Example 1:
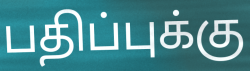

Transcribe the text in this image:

பதிப்புக்கு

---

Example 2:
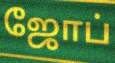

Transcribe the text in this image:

ஜோப்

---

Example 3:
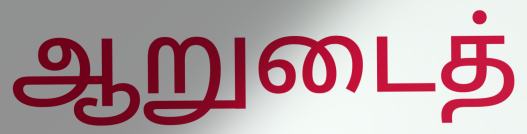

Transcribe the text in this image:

ஆறுடைத்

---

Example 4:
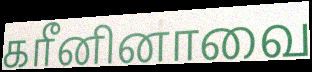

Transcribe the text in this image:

கரீனினாவை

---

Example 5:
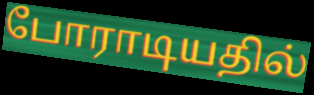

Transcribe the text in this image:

போராடியதில்